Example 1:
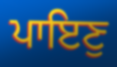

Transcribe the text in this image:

ਪਾਇਣੁ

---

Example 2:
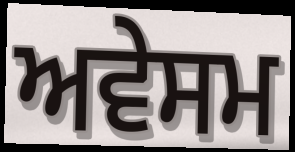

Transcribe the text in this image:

ਅਵੇਸਮ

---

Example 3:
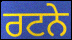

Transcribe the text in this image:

ਰਟਨੇ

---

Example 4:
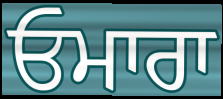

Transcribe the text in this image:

ਓਮਾਰਾ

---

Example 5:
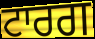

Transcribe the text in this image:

ਟਾਰਗ